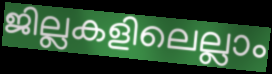
ജില്ലകളിലെല്ലാം